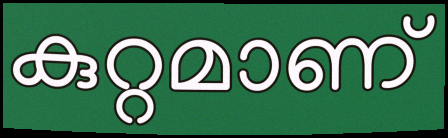
കുറ്റമാണ്